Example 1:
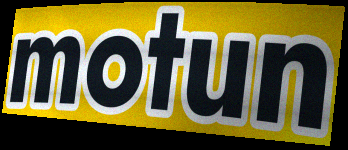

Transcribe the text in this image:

motun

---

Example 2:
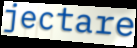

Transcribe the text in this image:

jectare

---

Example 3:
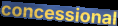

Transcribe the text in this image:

concessional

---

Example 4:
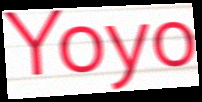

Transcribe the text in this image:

Yoyo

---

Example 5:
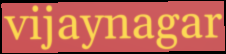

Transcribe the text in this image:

vijaynagar